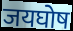
जयघोष